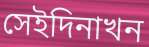
সেইদিনাখন